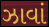
ઝાવાં